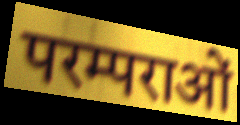
परम्पराओं